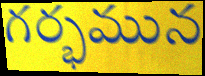
గర్భమున